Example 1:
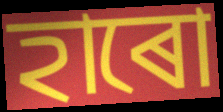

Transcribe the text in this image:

হাৰো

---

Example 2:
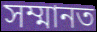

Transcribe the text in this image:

সম্মানত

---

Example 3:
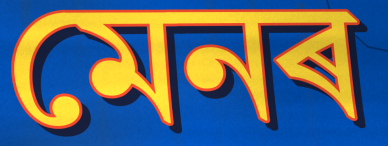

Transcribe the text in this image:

মেনৰ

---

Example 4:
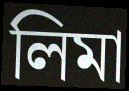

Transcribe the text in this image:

লিমা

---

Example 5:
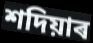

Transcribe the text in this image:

শদিয়াৰ